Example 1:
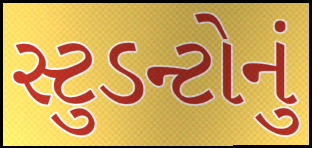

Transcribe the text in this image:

સ્ટુડન્ટોનું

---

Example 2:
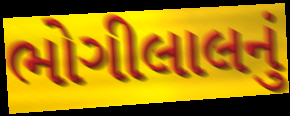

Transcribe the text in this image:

ભોગીલાલનું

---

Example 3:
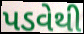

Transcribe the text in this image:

પડવેથી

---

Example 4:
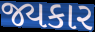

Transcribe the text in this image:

જ્યકાર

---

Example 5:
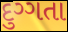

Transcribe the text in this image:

દુગ્ગતા